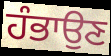
ਹੰਭਾਉਣ